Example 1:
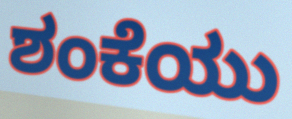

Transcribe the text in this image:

ಶಂಕೆಯು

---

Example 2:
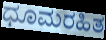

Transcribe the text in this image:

ಧೂಮರಹಿತ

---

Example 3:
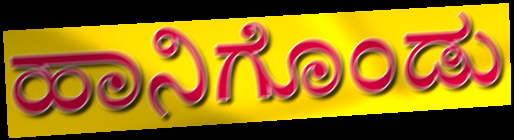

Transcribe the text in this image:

ಹಾನಿಗೊಂಡು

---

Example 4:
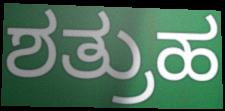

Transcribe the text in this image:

ಶತ್ರುಹ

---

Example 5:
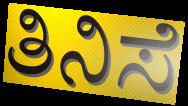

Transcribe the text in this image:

ತಿನಿಸೆ